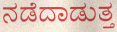
ನಡೆದಾಡುತ್ತ